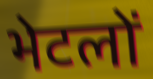
भेटलों